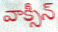
వాక్సీన్